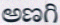
అణగి